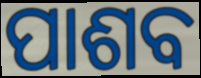
ପାଶବ